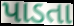
પાડતા